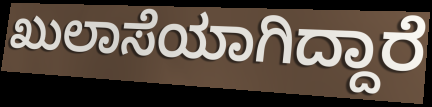
ಖುಲಾಸೆಯಾಗಿದ್ದಾರೆ